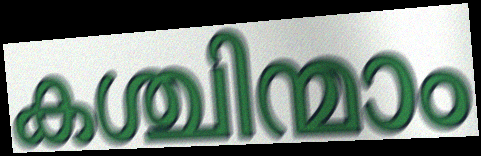
കശ്ചിന്മാം